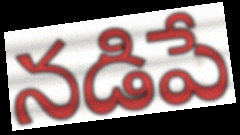
నడిపే